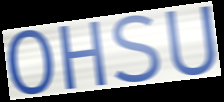
OHSU